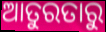
ଆତୁରତାରୁ